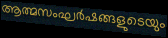
ആത്മസംഘർഷങ്ങളുടെയും